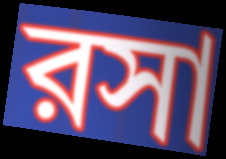
রসা